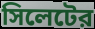
সিলেটের